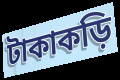
টাকাকড়ি